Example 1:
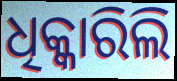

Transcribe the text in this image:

ଧିକ୍କାରିଲି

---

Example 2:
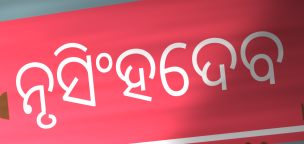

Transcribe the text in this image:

ନୃସିଂହଦେବ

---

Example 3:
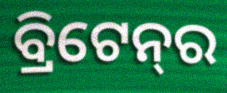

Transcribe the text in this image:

ବ୍ରିଟେନ୍‌ର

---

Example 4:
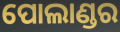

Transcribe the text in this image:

ପୋଲାଣ୍ଡର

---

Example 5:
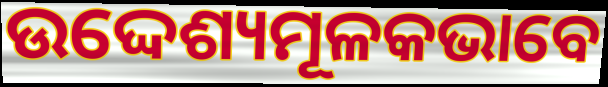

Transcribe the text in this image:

ଉଦ୍ଦେଶ୍ୟମୂଳକଭାବେ